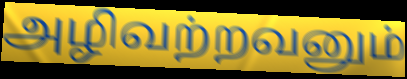
அழிவற்றவனும்